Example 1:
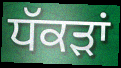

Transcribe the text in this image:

ਧੱਕੜਾਂ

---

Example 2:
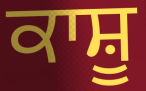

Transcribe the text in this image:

ਕਾਸ਼ੂ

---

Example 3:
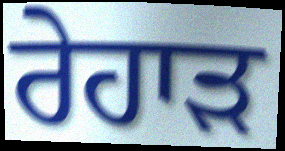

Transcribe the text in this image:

ਰੇਹਾੜ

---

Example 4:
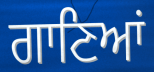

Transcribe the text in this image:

ਗਾਣਿਆਂ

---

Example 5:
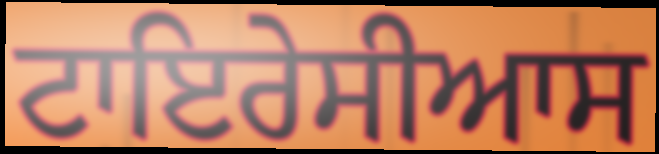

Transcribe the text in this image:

ਟਾਇਰੇਸੀਆਸ